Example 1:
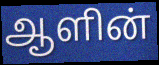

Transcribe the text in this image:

ஆளின்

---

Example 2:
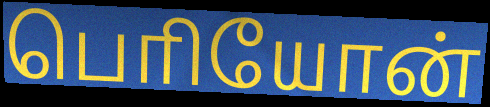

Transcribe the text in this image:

பெரியோன்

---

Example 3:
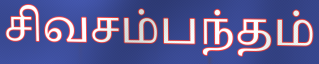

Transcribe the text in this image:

சிவசம்பந்தம்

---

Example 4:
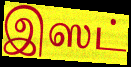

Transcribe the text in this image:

இஸட்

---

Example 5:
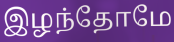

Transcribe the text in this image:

இழந்தோமே